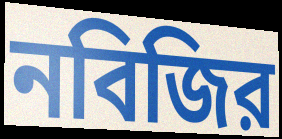
নবিজির